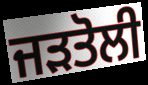
ਜੜਤੋਲੀ